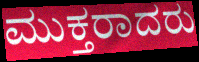
ಮುಕ್ತರಾದರು